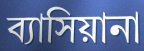
ব্যাসিয়ানা